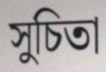
সুচিতা